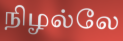
நிழல்லே